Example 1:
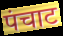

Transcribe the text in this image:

पंचाट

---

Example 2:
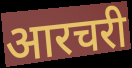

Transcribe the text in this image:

आरचरी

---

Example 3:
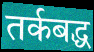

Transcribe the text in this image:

तर्कबद्ध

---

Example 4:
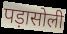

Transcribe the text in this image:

पड़ासोली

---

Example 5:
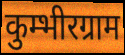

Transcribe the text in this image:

कुम्भीरग्राम